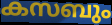
കസബും